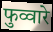
फुव्वारे